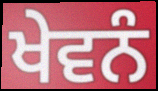
ਖੇਵਨੰ